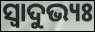
ସ୍ବାଦୁଭ୍ୟଃ